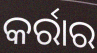
କର୍ରାର